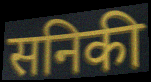
सनिकी